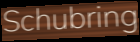
Schubring